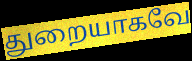
துறையாகவே